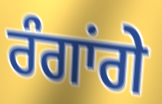
ਰੰਗਾਂਗੇ